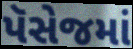
પૅસેજમાં